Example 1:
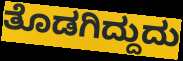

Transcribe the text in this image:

ತೊಡಗಿದ್ದುದು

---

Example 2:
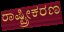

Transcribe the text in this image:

ರಾಷ್ಟ್ರೀಕರಣ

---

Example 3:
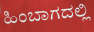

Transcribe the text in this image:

ಹಿಂಬಾಗದಲ್ಲಿ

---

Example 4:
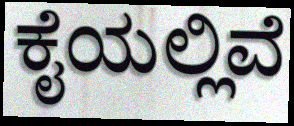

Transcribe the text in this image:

ಕೈಯಲ್ಲಿವೆ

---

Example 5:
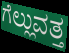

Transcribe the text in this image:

ಗೆಲ್ಲುವತ್ತ